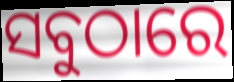
ସବୁଠାରେ